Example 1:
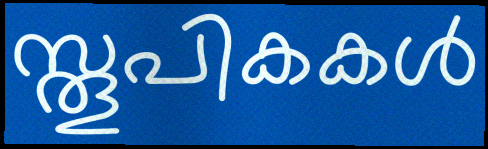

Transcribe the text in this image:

സ്തൂപികകൾ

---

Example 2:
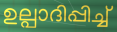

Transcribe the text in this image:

ഉല്പാദിപ്പിച്ച്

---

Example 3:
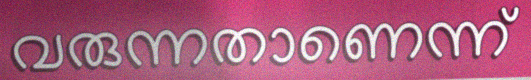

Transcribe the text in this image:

വരുന്നതാണെന്ന്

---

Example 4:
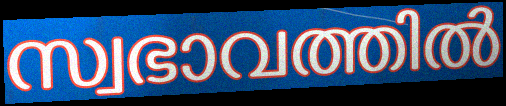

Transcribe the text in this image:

സ്വഭാവത്തിൽ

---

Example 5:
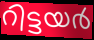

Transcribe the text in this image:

റിട്ടയർ